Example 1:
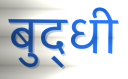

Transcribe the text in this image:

बुद्धी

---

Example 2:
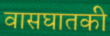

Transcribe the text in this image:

वासघातकी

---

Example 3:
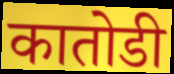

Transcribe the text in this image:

कातोडी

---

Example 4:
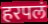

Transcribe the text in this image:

हरपलं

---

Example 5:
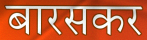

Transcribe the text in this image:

बारसकर